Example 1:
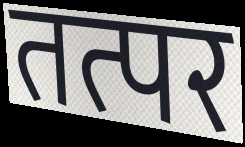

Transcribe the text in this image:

तत्पर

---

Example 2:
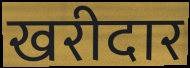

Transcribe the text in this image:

खरीदार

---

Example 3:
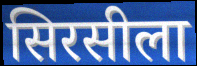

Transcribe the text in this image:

सिरसीला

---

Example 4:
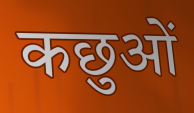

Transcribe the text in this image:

कछुओं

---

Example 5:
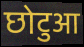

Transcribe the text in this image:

छोटुआ